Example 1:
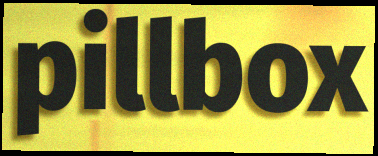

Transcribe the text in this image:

pillbox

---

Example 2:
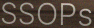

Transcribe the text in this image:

SSOPs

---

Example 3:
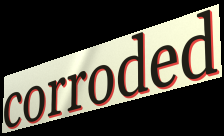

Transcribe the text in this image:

corroded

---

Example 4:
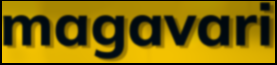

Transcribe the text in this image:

magavari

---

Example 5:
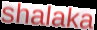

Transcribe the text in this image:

shalaka